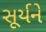
સૂર્યને